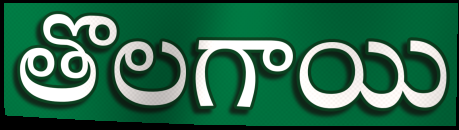
తొలగాయి